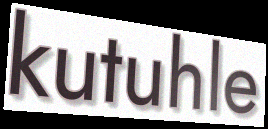
kutuhle